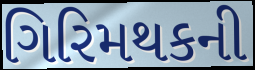
ગિરિમથકની